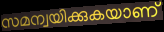
സമന്വയിക്കുകയാണ്